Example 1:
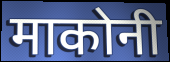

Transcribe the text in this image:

माकोनी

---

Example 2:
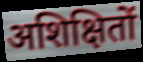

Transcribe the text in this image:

अशिक्षितों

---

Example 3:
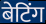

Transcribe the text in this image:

बेटिंग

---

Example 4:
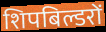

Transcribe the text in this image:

शिपबिल्डरों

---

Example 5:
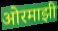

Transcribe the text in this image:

ओरमाझी